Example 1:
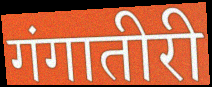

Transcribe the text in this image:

गंगातीरी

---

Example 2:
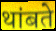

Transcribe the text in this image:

थांबते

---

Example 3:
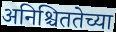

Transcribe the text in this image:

अनिश्चिततेच्या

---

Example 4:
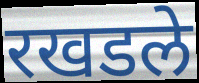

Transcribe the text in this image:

रखडले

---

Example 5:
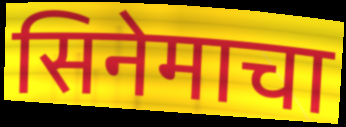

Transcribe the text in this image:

सिनेमाचा